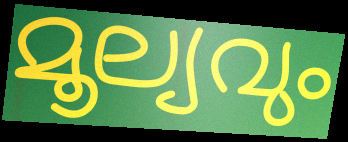
മൂല്യവും